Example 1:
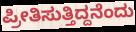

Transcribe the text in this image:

ಪ್ರೀತಿಸುತ್ತಿದ್ದನೆಂದು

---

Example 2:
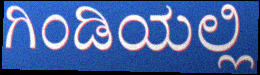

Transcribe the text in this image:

ಗಿಂಡಿಯಲ್ಲಿ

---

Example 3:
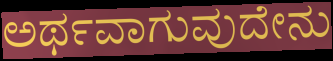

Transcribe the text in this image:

ಅರ್ಥವಾಗುವುದೇನು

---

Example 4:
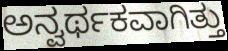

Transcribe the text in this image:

ಅನ್ವರ್ಥಕವಾಗಿತ್ತು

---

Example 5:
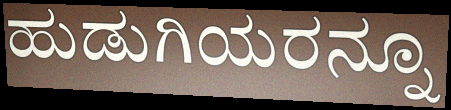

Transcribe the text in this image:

ಹುಡುಗಿಯರನ್ನೂ